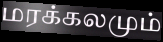
மரக்கலமும்